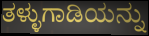
ತಳ್ಳುಗಾಡಿಯನ್ನು